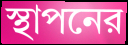
স্থাপনের